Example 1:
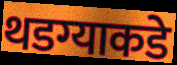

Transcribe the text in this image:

थडग्याकडे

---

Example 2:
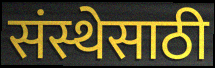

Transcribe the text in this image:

संस्थेसाठी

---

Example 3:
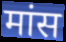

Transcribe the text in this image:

मांस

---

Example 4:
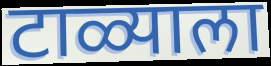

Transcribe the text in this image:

टाळ्याला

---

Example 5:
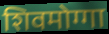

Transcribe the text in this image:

शिवमोग्गा